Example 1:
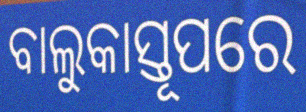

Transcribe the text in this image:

ବାଲୁକାସ୍ତୂପରେ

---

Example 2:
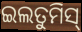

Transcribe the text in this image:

ଇଲତୁମିସ୍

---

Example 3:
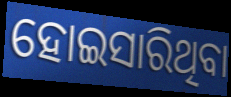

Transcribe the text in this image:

ହୋଇସାରିଥିବା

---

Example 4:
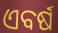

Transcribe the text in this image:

ଏବର୍ଷ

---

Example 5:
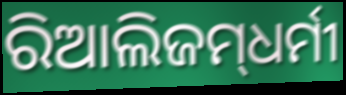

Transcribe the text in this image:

ରିଆଲିଜମ୍‌ଧର୍ମୀ